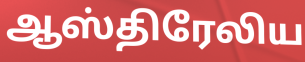
ஆஸ்திரேலிய